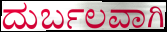
ದುರ್ಬಲವಾಗಿ